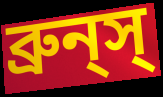
ব্রুন্‌স্